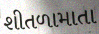
શીતળામાતા